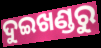
ଦୁଇଖଣ୍ଡରୁ